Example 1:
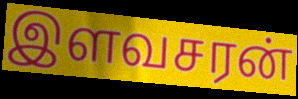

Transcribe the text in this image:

இளவசரன்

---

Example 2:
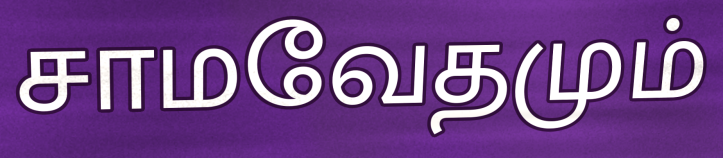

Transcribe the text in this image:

சாமவேதமும்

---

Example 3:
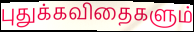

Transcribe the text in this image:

புதுக்கவிதைகளும்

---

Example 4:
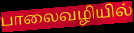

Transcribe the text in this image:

பாலைவழியில்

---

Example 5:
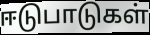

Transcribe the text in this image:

ஈடுபாடுகள்